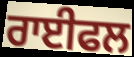
ਰਾਈਫਲ